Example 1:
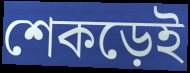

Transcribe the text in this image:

শেকড়েই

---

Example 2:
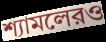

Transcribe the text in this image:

শ্যামলেরও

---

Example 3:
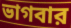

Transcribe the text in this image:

ভাগবার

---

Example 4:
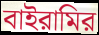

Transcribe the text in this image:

বাইরামির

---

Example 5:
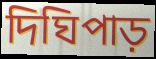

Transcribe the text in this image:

দিঘিপাড়